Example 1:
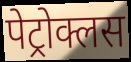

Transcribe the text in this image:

पेट्रोक्लस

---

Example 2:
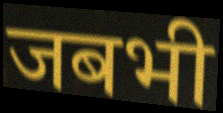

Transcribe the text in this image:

जबभी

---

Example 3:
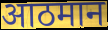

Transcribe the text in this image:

आठमान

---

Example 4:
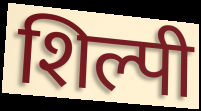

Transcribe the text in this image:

शिल्‍पी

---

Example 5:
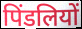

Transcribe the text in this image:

पिंडलियों